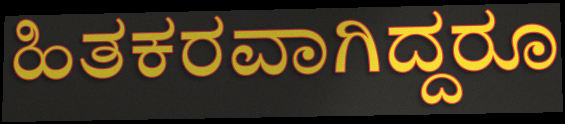
ಹಿತಕರವಾಗಿದ್ದರೂ